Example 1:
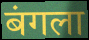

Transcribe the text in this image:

बंगला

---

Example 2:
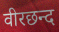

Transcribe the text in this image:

वीरछन्द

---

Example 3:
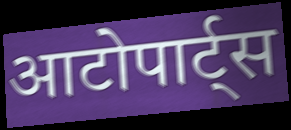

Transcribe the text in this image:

आटोपार्ट्स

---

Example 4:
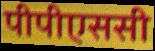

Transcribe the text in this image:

पीपीएससी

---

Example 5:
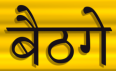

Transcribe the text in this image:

बैठगे